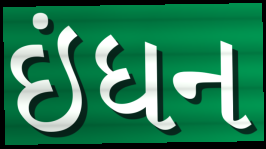
ઇંધન